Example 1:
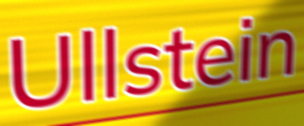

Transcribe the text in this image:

Ullstein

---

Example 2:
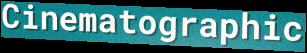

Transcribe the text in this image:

Cinematographic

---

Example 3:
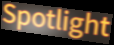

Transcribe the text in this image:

Spotlight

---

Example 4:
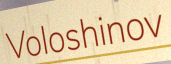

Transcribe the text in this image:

Voloshinov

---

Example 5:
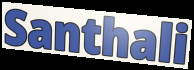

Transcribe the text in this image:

Santhali